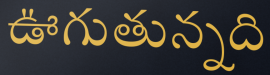
ఊగుతున్నది